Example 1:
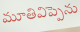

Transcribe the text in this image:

మూతివిప్పెను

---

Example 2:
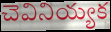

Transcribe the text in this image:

చెవినియ్యక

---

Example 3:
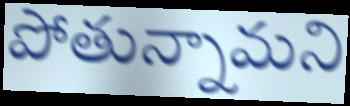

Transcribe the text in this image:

పోతున్నామని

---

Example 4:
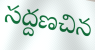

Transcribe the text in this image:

సద్దణచిన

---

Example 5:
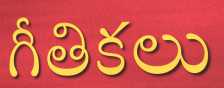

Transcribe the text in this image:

గీతికలు